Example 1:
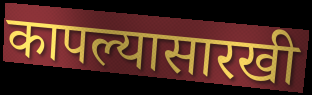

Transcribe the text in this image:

कापल्यासारखी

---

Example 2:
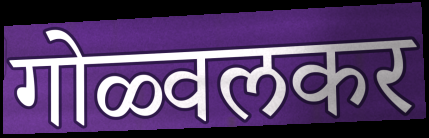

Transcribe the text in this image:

गोळ्वलकर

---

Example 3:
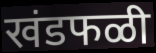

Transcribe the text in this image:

खंडफळी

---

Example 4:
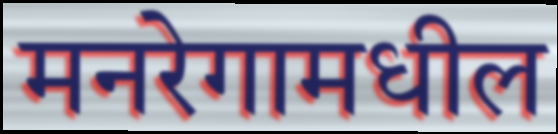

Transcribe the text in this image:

मनरेगामधील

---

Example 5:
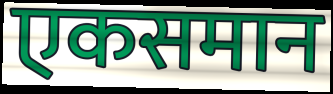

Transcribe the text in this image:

एकसमान